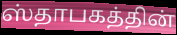
ஸ்தாபகத்தின்